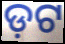
ଡ଼ଟ